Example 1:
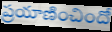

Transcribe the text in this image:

ప్రయాణించిందో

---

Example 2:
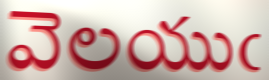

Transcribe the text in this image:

వెలయుఁ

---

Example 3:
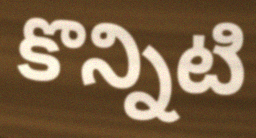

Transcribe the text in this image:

కొన్నిటి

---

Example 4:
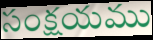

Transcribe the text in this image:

సంక్షయము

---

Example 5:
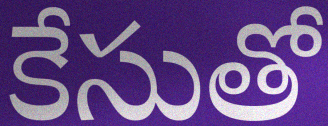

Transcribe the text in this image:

కేసుతో